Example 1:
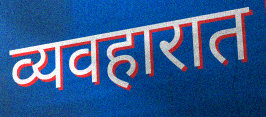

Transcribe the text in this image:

व्यवहारात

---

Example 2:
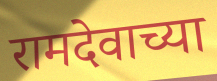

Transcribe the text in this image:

रामदेवाच्या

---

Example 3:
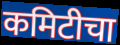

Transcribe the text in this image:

कमिटीचा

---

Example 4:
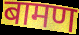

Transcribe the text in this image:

बामण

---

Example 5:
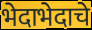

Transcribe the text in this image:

भेदाभेदाचे